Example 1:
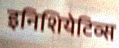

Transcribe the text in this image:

इनिशियेटिव्स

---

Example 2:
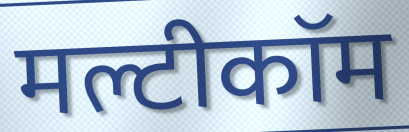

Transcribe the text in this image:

मल्टीकॉम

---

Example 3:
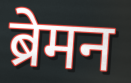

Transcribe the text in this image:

ब्रेमन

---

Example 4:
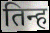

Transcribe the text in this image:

तिन्ह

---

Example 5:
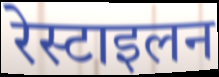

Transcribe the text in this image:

रेस्टाइलन